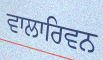
ਵਾਲਾਰਿਵਨ